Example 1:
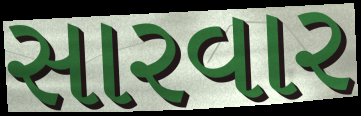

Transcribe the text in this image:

સારવાર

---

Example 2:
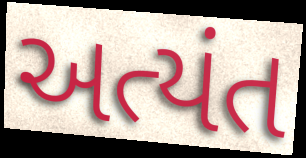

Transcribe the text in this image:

અત્યંત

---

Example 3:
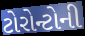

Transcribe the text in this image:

ટોરોન્ટોની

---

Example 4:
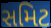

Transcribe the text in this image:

સમિટ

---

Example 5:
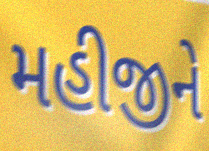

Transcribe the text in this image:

મહીજીને